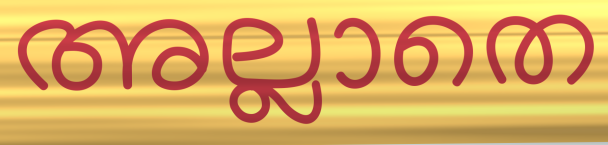
അല്ലാതെ